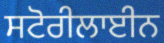
ਸਟੋਰੀਲਾਈਨ